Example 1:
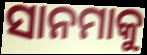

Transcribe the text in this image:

ସାନମାକୁ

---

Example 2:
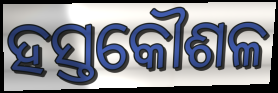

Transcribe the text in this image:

ହସ୍ତକୌଶଳ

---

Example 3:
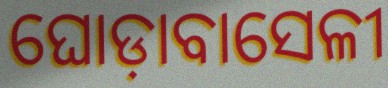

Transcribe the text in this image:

ଘୋଡ଼ାବାସେଳୀ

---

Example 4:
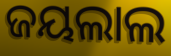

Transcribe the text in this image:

ଜୟଲାଲ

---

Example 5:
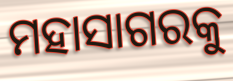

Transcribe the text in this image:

ମହାସାଗରକୁ